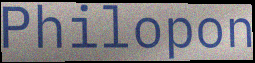
Philopon